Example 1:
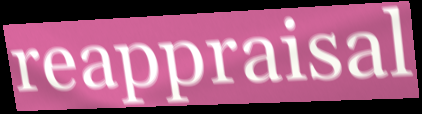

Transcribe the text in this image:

reappraisal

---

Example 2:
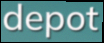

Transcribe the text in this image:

depot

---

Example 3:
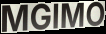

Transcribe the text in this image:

MGIMO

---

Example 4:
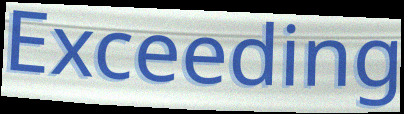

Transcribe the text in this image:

Exceeding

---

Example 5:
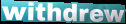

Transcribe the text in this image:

withdrew